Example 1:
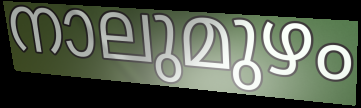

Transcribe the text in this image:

നാലുമുഴം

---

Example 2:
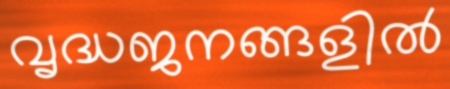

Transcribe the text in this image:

വൃദ്ധജനങ്ങളിൽ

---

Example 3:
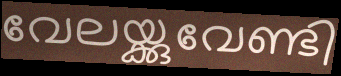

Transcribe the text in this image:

വേലയ്ക്കുവേണ്ടി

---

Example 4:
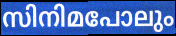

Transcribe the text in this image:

സിനിമപോലും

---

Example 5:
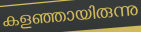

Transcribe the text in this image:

കളഞ്ഞായിരുന്നു